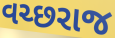
વચ્છરાજ